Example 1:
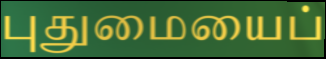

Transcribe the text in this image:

புதுமையைப்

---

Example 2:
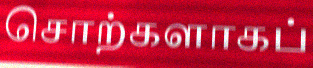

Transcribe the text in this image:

சொற்களாகப்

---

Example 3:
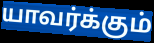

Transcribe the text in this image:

யாவர்க்கும்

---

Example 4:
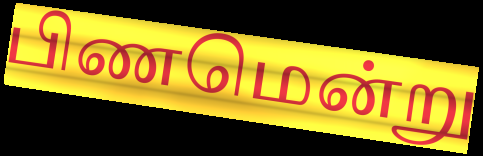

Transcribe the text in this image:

பிணமென்று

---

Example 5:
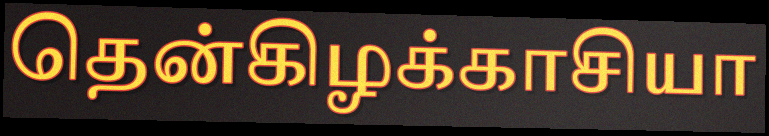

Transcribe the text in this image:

தென்கிழக்காசியா